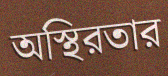
অস্থিরতার